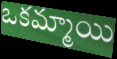
ఒకమ్మాయి